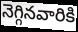
నెగ్గినవారికి